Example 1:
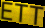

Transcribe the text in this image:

ETT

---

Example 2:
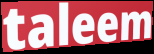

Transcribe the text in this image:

taleem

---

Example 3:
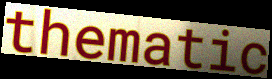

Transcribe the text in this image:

thematic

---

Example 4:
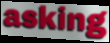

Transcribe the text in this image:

asking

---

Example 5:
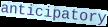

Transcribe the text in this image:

anticipatory